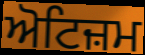
ਅੋਟਿਜ਼ਮ